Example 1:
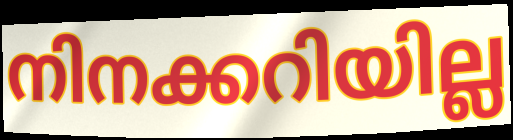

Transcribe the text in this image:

നിനക്കറിയില്ല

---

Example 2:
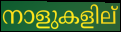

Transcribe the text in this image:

നാളുകളില്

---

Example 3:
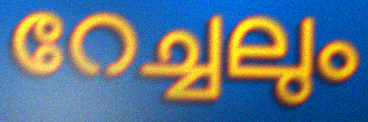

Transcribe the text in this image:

റേച്ചലും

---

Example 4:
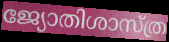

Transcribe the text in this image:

ജ്യോതിശാസ്ത്ര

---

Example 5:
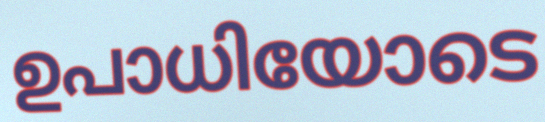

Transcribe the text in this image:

ഉപാധിയോടെ